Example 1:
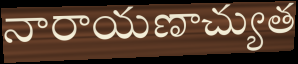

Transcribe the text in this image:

నారాయణాచ్యుత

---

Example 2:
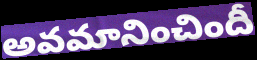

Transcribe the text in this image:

అవమానించిందీ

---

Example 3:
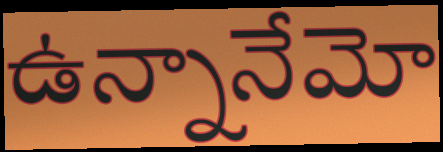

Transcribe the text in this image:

ఉన్నానేమో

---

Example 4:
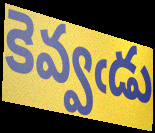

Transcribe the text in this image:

కెవ్వఁడు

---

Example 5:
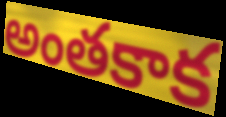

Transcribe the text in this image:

అంతకాక